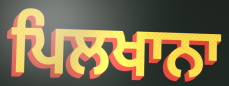
ਪਿਲਖਾਨਾ